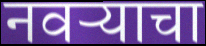
नवऱ्याचा